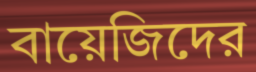
বায়েজিদের